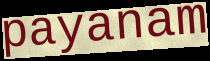
payanam